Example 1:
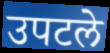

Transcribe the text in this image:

उपटले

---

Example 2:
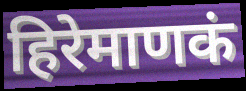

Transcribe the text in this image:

हिरेमाणकं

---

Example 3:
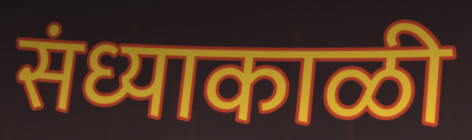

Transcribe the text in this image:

संध्याकाळी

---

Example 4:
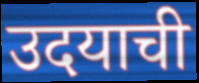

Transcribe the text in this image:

उदयाची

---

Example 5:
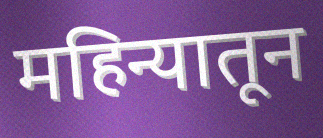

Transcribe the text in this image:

महिन्यातून